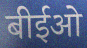
बीईओ